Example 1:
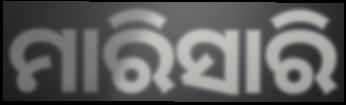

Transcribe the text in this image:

ମାରିସାରି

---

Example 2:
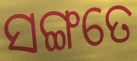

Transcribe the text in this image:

ସଙ୍ଗତେ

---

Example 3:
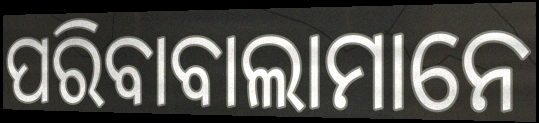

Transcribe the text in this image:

ପରିବାବାଲାମାନେ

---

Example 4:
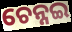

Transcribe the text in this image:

ଚେନ୍ନଇ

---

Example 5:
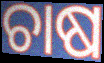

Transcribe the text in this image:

ଚାଷ